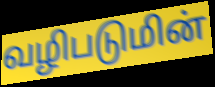
வழிபடுமின்